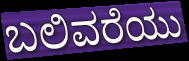
ಬಲಿವರೆಯು